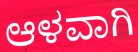
ಆಳವಾಗಿ